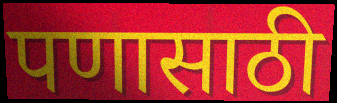
पणासाठी